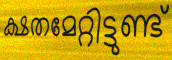
ക്ഷതമേറ്റിട്ടുണ്ട്